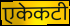
एकेकटी